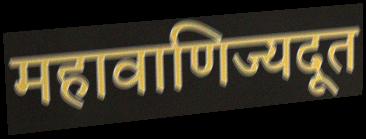
महावाणिज्यदूत